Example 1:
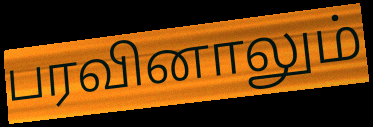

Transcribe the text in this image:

பரவினாலும்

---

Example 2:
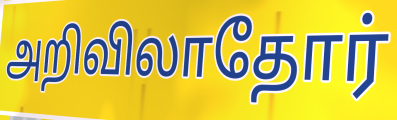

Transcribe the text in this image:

அறிவிலாதோர்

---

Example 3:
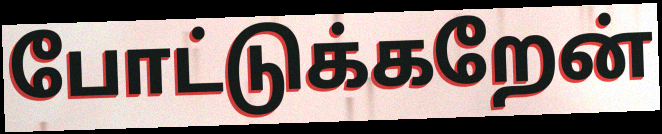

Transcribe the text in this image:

போட்டுக்கறேன்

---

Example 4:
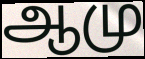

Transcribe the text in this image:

ஆமு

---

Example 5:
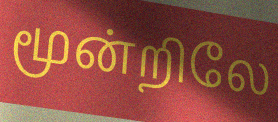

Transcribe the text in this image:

மூன்றிலே